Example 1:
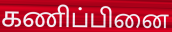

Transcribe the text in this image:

கணிப்பினை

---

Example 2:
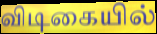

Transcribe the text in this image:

விடிகையில்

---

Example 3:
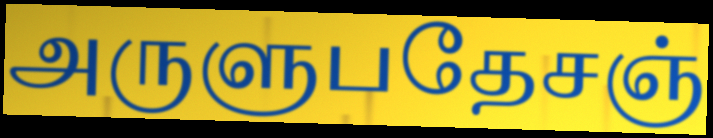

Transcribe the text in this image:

அருளுபதேசஞ்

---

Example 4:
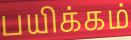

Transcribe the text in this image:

பயிக்கம்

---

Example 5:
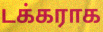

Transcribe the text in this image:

டக்கராக